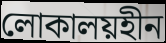
লোকালয়হীন